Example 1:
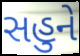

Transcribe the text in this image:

સહુને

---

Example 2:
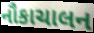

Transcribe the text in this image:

નૌકાચાલન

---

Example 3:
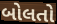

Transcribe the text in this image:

બોલતો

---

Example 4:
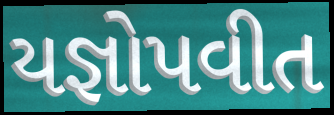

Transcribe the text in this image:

યજ્ઞોપવીત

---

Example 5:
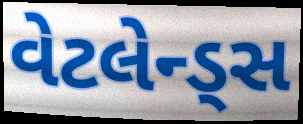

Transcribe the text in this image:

વેટલેન્ડ્સ